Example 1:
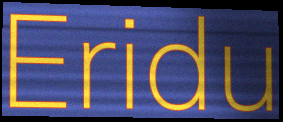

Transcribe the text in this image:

Eridu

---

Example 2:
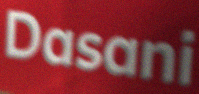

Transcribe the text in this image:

Dasani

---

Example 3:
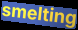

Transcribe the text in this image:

smelting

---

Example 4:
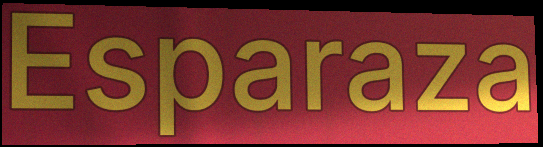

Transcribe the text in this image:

Esparaza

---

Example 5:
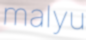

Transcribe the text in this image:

malyu